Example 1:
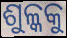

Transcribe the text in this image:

ଶୁଳ୍କକୁ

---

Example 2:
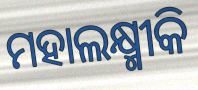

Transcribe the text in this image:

ମହାଲକ୍ଷ୍ମୀକି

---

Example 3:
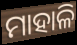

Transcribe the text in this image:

ମାହାଳି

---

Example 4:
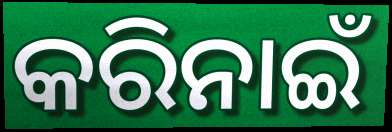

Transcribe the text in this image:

କରିନାଇଁ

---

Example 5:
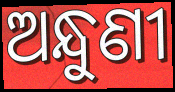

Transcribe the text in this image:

ଅନ୍ଧୁଣୀ